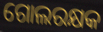
ଗୋଲରକ୍ଷକ